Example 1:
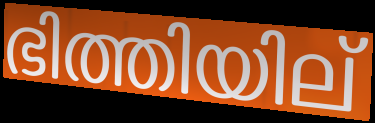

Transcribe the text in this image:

ഭിത്തിയില്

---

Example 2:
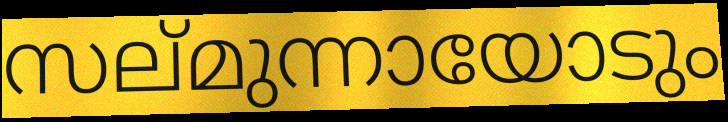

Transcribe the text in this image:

സല്മുന്നായോടും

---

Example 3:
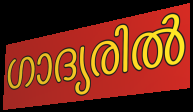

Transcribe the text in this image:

ഗാദ്യരിൽ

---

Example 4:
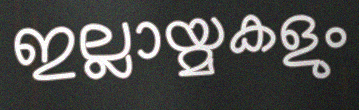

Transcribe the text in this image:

ഇല്ലായ്മകളും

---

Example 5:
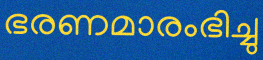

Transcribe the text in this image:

ഭരണമാരംഭിച്ചു